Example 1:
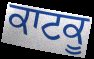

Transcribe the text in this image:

ਕਾਟਕੂ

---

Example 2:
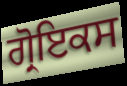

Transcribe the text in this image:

ਗ੍ਰੋਇਕਸ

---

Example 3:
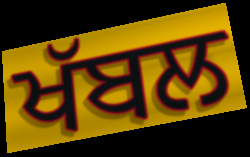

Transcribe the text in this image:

ਖੱਬਲ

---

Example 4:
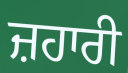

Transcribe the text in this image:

ਜ਼ਹਾਰੀ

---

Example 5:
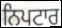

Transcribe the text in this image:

ਨਿਪਟਾਰ